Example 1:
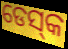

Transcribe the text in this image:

ଡେସ୍‌କ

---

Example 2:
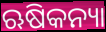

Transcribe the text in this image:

ଋଷିକନ୍ୟା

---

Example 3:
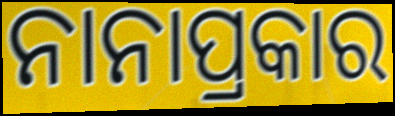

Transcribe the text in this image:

ନାନାପ୍ରକାର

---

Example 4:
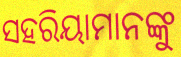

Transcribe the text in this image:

ସହରିୟାମାନଙ୍କୁ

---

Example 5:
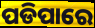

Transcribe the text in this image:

ପଡିପାରେ